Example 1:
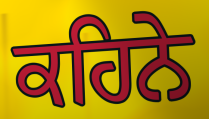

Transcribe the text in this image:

ਕਹਿਨੇ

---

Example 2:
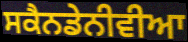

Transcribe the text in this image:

ਸਕੈਨਡੇਨੀਵੀਆ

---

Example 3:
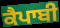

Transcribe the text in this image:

ਕੈਪਾਬੀ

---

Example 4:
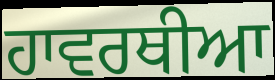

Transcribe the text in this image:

ਹਾਵਰਥੀਆ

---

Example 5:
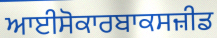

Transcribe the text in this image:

ਆਈਸੋਕਾਰਬਾਕਸਜ਼ੀਡ